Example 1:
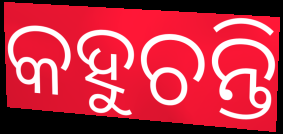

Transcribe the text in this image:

କହୁଚନ୍ତି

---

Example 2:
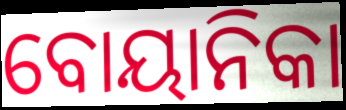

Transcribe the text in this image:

ବୋୟାନିକା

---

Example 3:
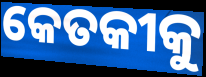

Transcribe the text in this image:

କେତକୀକୁ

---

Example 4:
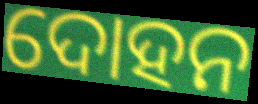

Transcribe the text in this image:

ଦୋହନ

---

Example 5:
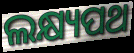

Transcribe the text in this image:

ଲକ୍ଷ୍ୟପଥ